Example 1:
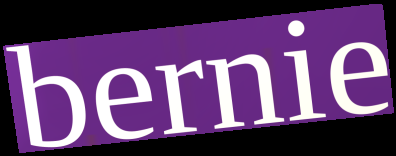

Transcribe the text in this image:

bernie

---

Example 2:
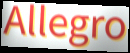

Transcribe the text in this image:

Allegro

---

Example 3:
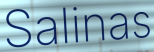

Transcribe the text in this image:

Salinas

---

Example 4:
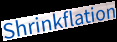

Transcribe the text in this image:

Shrinkflation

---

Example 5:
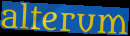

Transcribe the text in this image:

alterum